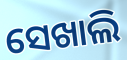
ସେଖାଲି